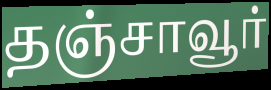
தஞ்சாவூர்